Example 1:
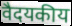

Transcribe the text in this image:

वैदयकीय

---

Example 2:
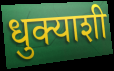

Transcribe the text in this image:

धुक्याशी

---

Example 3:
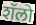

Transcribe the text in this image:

शॅलो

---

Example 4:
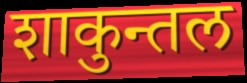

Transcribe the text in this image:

शाकुन्तल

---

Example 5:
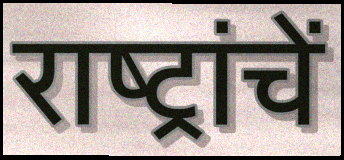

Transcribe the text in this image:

राष्ट्रांचें